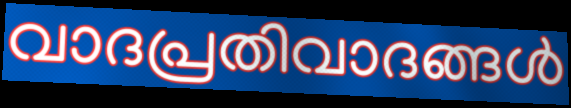
വാദപ്രതിവാദങ്ങൾ